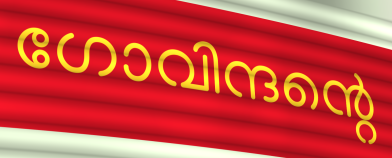
ഗോവിന്ദന്റെ